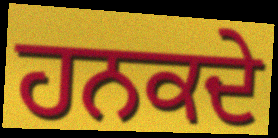
ਹਨਕਦੇ